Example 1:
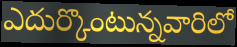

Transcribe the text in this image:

ఎదుర్కొంటున్నవారిలో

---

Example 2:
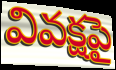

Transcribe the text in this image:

వివక్షపై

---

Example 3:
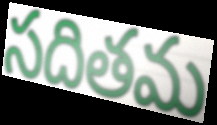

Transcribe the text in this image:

సదితమ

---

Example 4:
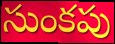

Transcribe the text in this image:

సుంకపు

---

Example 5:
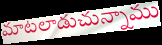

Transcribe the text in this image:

మాటలాడుచున్నాము